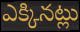
ఎక్కినట్లు